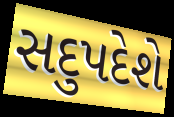
સદુપદેશે